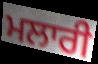
ਮਲਾਰੀ